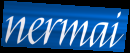
nermai